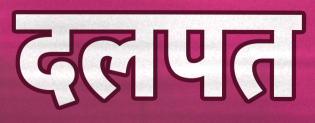
दलपत